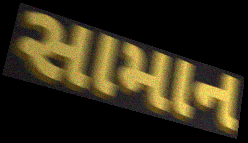
સામાન